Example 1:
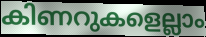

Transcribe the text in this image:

കിണറുകളെല്ലാം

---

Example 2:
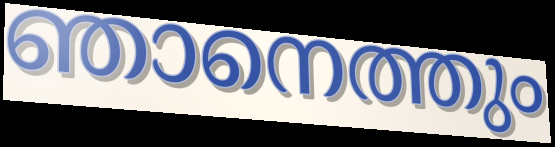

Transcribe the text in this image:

ഞാനെത്തും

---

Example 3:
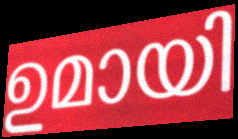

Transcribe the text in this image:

ഉമായി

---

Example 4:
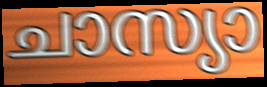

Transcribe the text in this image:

ചാസ്യാ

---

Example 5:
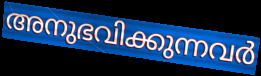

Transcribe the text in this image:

അനുഭവിക്കുന്നവർ